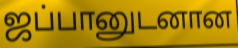
ஜப்பானுடனான